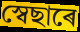
স্বেছাৰে